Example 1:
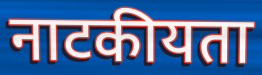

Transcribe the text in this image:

नाटकीयता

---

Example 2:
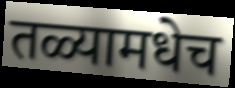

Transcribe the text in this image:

तळ्यामधेच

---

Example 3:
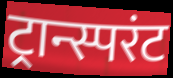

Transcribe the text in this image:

ट्रान्स्परंट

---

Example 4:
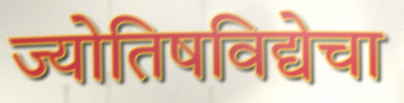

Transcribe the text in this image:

ज्योतिषविद्येचा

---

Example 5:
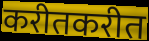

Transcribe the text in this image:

करीतकरीत